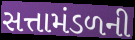
સત્તામંડળની